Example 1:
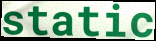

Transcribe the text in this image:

static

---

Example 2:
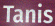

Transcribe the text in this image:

Tanis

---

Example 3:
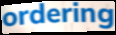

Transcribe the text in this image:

ordering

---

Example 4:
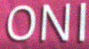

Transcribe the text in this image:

ONI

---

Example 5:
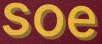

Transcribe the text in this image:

soe